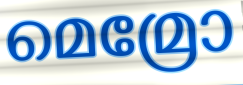
മെമ്രോ